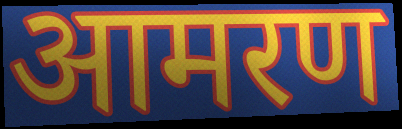
आमरण